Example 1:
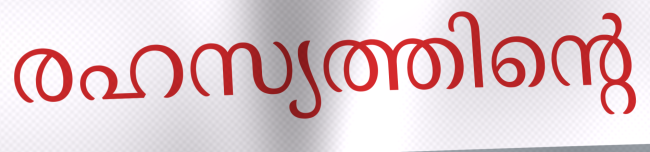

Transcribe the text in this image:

രഹസ്യത്തിന്റെ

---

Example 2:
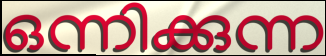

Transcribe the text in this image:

ഒന്നിക്കുന്ന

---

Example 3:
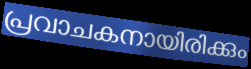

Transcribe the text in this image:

പ്രവാചകനായിരിക്കും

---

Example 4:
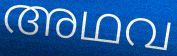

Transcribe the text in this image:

അഥവ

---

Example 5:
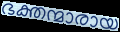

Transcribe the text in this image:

ഭക്തന്മാരായ